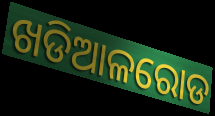
ଖଡିଆଳରୋଡ